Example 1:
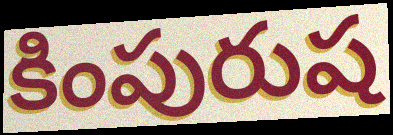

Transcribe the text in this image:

కింపురుష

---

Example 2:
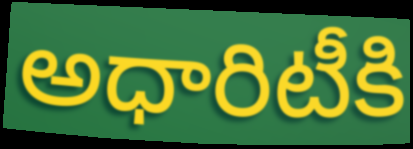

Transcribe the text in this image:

అధారిటీకి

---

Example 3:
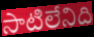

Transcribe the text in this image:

సాటిలేనిది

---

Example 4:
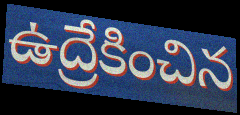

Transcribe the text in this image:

ఉద్రేకించిన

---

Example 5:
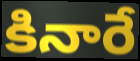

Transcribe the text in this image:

కినారే